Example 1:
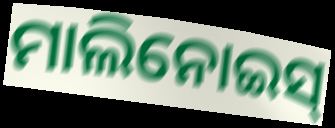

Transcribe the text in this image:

ମାଲିନୋଇସ୍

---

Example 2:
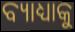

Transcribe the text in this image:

ବ୍ୟାଧ୍ୟାକୁ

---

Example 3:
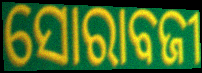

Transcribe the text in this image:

ସୋରାବଜୀ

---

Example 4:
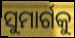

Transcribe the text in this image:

ସୁମାର୍ଗକୁ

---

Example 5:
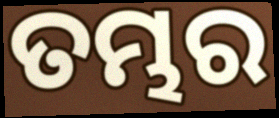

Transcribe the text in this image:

ତମ୍ଭର